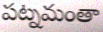
పట్నమంతా